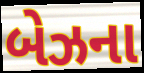
બેઝના